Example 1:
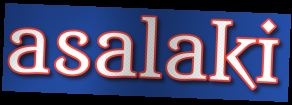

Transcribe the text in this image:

asalaki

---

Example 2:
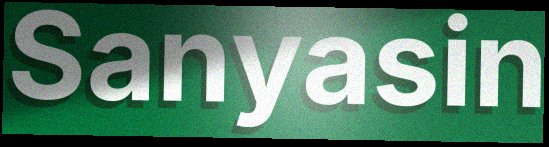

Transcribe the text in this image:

Sanyasin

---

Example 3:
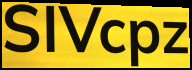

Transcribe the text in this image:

SIVcpz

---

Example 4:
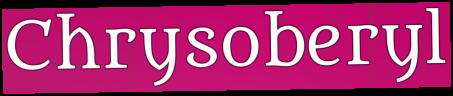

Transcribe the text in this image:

Chrysoberyl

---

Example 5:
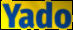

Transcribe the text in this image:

Yado